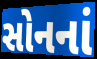
સોનનાં